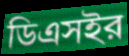
ডিএসইর